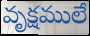
వృక్షములే